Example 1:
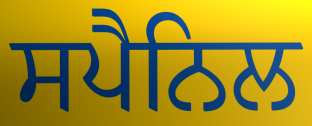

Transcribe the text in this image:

ਸਪੈਨਿਲ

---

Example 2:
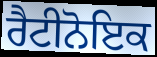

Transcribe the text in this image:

ਰੈਟੀਨੋਇਕ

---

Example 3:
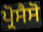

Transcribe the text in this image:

ਪ੍ਰੋਸੈਸੋ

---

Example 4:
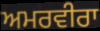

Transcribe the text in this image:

ਅਮਰਵੀਰਾ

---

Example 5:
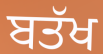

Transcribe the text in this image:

ਬਤੱਖ